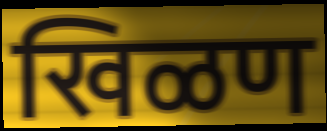
खिळण